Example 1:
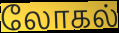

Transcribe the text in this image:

லோகல்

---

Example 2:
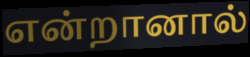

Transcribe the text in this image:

என்றானால்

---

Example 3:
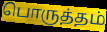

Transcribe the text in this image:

பொருத்தம்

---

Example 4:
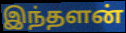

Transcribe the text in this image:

இந்தளன்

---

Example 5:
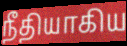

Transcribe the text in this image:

நீதியாகிய